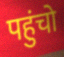
पहुंचो